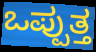
ಒಪ್ಪುತ್ತ